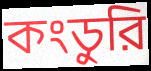
কংডুরি